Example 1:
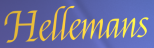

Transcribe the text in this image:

Hellemans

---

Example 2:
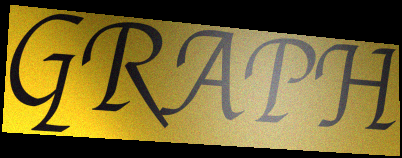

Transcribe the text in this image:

GRAPH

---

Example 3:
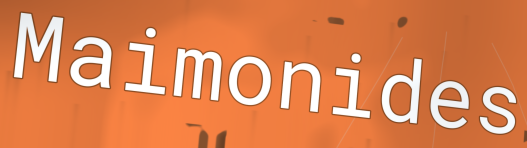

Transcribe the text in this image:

Maimonides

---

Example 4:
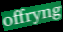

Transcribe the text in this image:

offryng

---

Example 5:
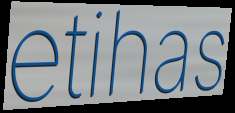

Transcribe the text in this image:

etihas